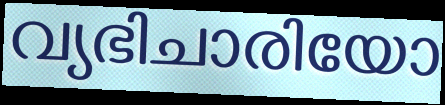
വ്യഭിചാരിയോ